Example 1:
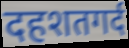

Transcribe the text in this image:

दहशतगर्द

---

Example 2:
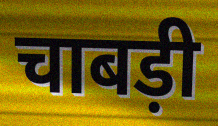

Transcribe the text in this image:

चाबड़ी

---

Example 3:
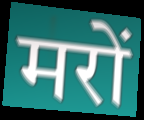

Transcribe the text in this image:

मरों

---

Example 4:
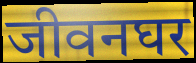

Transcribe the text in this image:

जीवनघर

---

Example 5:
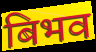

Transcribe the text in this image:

बिभव